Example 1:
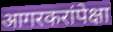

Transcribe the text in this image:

आगरकरांपेक्षा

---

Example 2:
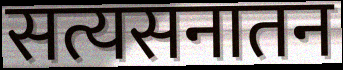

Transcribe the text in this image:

सत्यसनातन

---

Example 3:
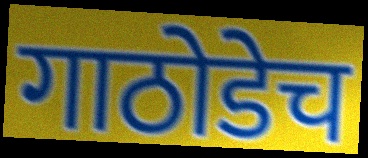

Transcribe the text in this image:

गाठोडेच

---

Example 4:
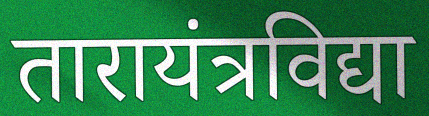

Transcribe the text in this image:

तारायंत्रविद्या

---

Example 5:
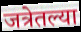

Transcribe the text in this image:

जत्रेतल्या